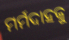
ମର୍ମଦାହକୁ